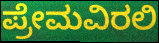
ಪ್ರೇಮವಿರಲಿ